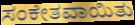
ಸಂಕೇತವಾಯಿತು